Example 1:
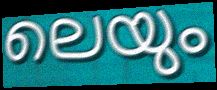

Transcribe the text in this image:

ലെയും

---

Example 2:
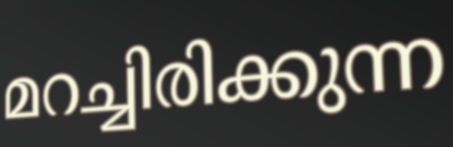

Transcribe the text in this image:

മറച്ചിരിക്കുന്ന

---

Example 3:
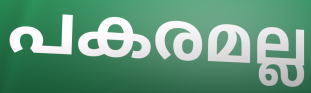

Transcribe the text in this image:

പകരമല്ല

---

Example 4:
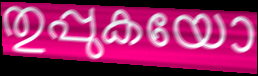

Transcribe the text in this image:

തുപ്പുകയോ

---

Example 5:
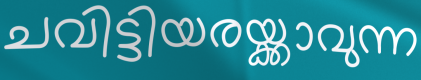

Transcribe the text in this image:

ചവിട്ടിയരയ്ക്കാവുന്ന